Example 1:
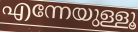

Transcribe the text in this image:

എന്നേയുള്ളൂ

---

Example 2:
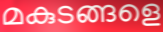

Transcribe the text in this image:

മകുടങ്ങളെ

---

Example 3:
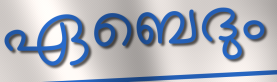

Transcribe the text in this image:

ഏബെദും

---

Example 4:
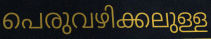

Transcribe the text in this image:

പെരുവഴിക്കലുള്ള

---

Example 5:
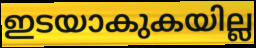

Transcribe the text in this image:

ഇടയാകുകയില്ല